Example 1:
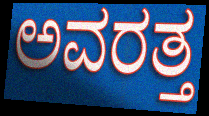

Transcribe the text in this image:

ಅವರತ್ತ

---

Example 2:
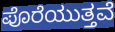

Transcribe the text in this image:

ಪೊರೆಯುತ್ತವೆ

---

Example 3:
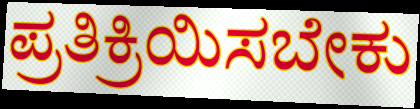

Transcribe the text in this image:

ಪ್ರತಿಕ್ರಿಯಿಸಬೇಕು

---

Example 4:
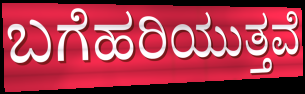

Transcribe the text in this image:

ಬಗೆಹರಿಯುತ್ತವೆ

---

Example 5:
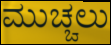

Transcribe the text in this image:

ಮುಚ್ಚಲು